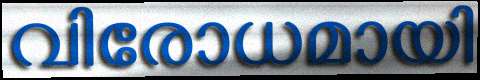
വിരോധമായി